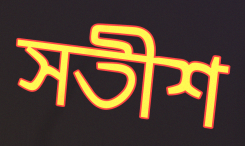
সতীশ